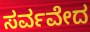
ಸರ್ವವೇದ